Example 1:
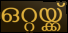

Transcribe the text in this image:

ഒറ്റയ്ക്ക്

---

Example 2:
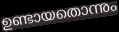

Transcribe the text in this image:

ഉണ്ടായതൊന്നും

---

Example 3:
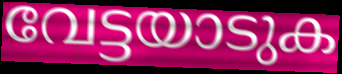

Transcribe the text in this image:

വേട്ടയാടുക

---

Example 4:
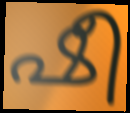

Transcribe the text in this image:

ഷീ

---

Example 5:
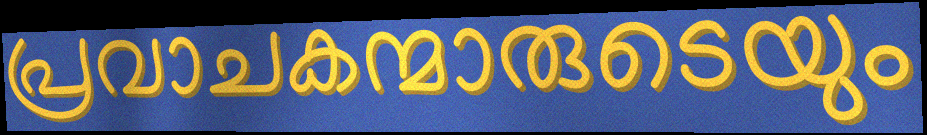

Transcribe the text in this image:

പ്രവാചകന്മാരുടെയും